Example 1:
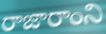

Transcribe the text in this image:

రాజారాంని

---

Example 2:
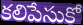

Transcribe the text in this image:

కలిపేసుకో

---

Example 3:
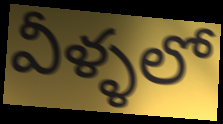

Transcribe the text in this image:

వీళ్ళలో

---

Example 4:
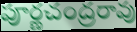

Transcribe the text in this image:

పూర్ణచంద్రరావు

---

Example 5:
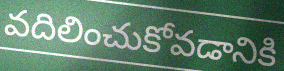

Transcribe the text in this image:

వదిలించుకోవడానికి